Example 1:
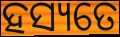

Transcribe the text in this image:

ହସ୍ୟତେ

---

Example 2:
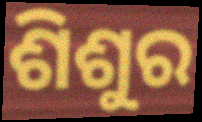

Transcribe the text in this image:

ଶିଶୁର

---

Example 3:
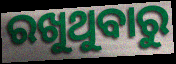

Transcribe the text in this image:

ରଖୁଥୁବାରୁ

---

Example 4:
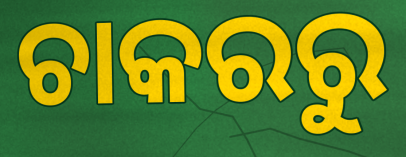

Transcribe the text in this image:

ଚାକରରୁ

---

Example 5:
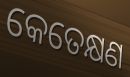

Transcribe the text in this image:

କେତେକ୍ଷଣ